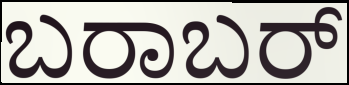
ಬರಾಬರ್